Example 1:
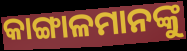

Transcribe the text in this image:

କାଙ୍ଗାଳମାନଙ୍କୁ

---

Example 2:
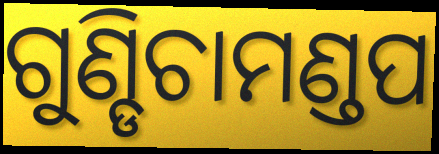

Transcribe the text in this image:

ଗୁଣ୍ଡିଚାମଣ୍ଡପ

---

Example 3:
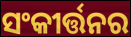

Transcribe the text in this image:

ସଂକୀର୍ତ୍ତନର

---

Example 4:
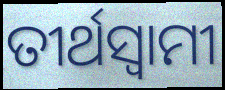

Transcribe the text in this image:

ତୀର୍ଥସ୍ୱାମୀ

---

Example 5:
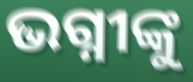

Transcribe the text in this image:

ଭଗ୍ନୀଙ୍କୁ